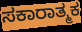
ಸಕಾರಾತ್ಮಕ